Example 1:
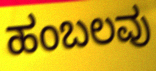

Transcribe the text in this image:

ಹಂಬಲವು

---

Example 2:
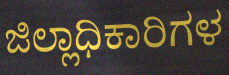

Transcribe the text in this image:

ಜಿಲ್ಲಾಧಿಕಾರಿಗಳ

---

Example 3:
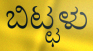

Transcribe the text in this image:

ಬಿಟ್ಟಳು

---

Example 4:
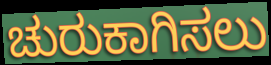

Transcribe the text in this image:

ಚುರುಕಾಗಿಸಲು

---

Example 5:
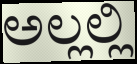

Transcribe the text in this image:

ಅಲ್ಲಲ್ಲಿ